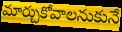
మార్చుకోవాలనుకునే